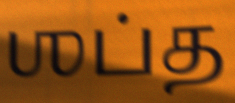
ஶப்த